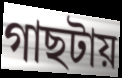
গাছটায়